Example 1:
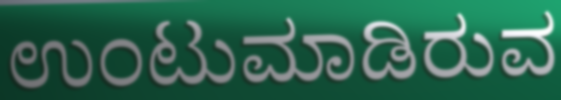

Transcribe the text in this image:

ಉಂಟುಮಾಡಿರುವ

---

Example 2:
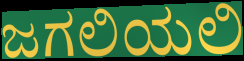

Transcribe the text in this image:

ಜಗಲಿಯಲಿ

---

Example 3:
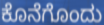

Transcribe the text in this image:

ಕೊನೆಗೊಂದು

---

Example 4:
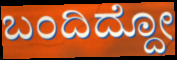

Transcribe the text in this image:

ಬಂದಿದ್ದೋ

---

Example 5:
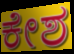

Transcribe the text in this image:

ಕೇಶ